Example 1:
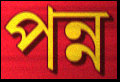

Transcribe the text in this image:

পন্ন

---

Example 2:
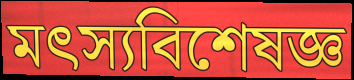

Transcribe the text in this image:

মৎস্যবিশেষজ্ঞ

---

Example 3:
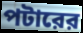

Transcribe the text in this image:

পটারের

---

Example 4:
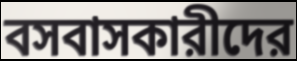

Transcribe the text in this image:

বসবাসকারীদের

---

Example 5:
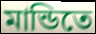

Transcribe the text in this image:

মান্ডিতে